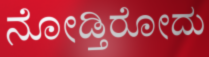
ನೋಡ್ತಿರೋದು